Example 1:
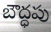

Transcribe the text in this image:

బౌద్ధపు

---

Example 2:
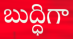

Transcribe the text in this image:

బుద్ధిగా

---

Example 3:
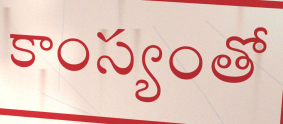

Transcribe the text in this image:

కాంస్యంతో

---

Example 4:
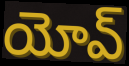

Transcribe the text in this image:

యోవ్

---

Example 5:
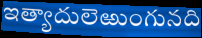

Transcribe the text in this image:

ఇత్యాదులెఱుంగునది